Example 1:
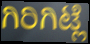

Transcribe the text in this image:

ಗಿರಿಗಿಟ್ಲೆ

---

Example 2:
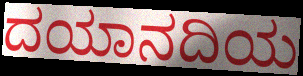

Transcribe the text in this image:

ದಯಾನದಿಯ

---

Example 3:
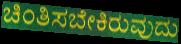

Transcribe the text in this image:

ಚಿಂತಿಸಬೇಕಿರುವುದು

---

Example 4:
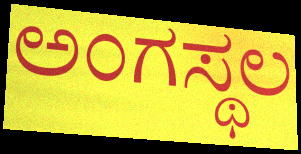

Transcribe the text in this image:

ಅಂಗಸ್ಥಲ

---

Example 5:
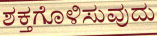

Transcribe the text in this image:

ಶಕ್ತಗೊಳಿಸುವುದು